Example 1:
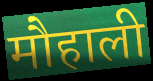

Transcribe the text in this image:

मौहाली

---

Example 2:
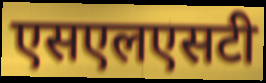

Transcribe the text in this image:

एसएलएसटी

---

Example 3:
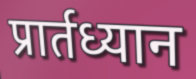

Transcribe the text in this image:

प्रार्तध्यान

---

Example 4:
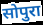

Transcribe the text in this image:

सोपुरा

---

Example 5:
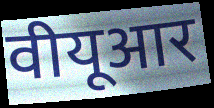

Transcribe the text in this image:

वीयूआर